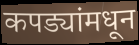
कपड्यांमधून